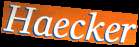
Haecker